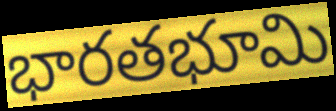
భారతభూమి